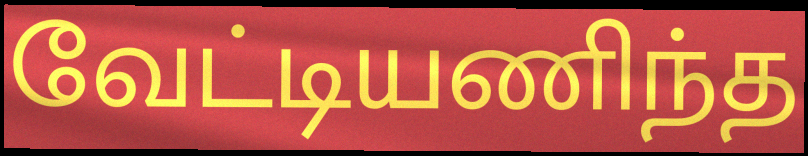
வேட்டியணிந்த